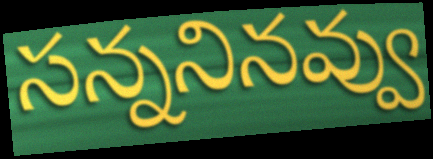
సన్ననినవ్వు